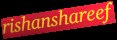
rishanshareef